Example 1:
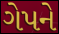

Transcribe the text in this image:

ગેપને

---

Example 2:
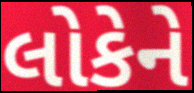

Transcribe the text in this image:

લોકેને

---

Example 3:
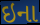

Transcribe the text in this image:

ઇના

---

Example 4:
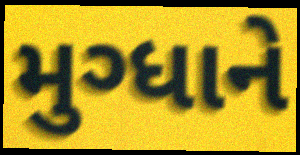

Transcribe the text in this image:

મુગ્ધાને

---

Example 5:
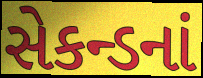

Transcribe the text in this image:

સેકન્ડનાં